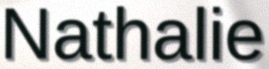
Nathalie